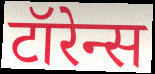
टॉरेन्स